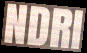
NDRI